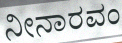
ನೀನಾರವಂ